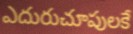
ఎదురుచూపులకే